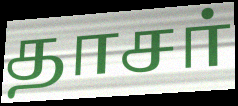
தாசர்